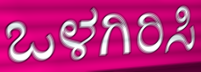
ಒಳಗಿರಿಸಿ